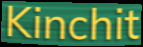
Kinchit